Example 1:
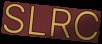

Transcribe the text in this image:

SLRC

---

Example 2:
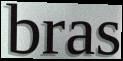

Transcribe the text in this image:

bras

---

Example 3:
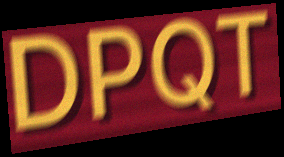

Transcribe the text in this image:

DPQT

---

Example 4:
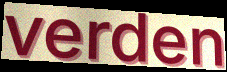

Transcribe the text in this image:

verden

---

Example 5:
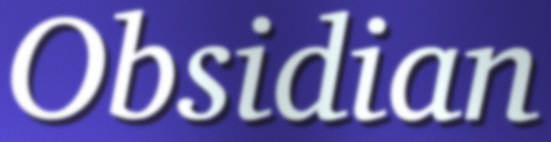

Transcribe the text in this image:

Obsidian